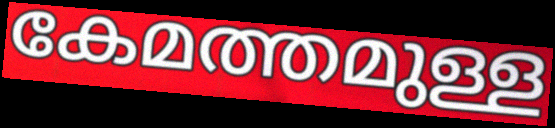
കേമത്തമുള്ള